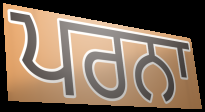
ਪਰਨਾ